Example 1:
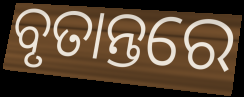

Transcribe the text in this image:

ବୃତାନ୍ତରେ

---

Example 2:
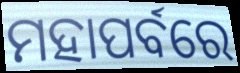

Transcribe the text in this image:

ମହାପର୍ବରେ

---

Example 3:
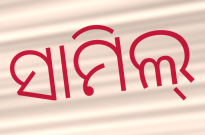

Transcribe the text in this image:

ସାମିଲ୍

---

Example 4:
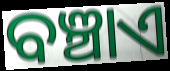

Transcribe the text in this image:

ବଞ୍ଚାଏ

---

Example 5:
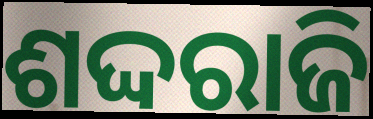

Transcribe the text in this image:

ଶଦ୍ଦରାଜି